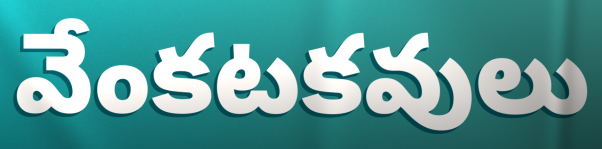
వేంకటకవులు